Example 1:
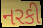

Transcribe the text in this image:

નરકી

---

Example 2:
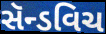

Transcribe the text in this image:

સૅન્ડવિચ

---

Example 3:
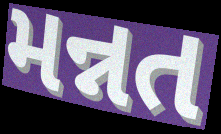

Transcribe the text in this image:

મન્નત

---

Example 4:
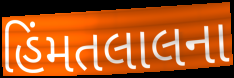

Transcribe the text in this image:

હિંમતલાલના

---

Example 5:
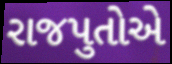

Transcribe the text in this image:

રાજપુતોએ